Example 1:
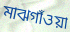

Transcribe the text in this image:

মাঝগাঁওয়া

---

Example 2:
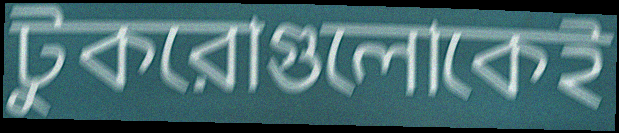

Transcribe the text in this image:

টুকরোগুলোকেই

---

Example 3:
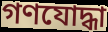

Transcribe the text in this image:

গণযোদ্ধা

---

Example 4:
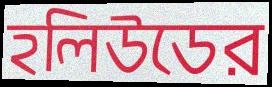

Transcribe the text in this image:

হলিউডের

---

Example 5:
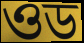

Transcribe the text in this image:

ওড